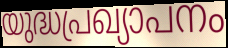
യുദ്ധപ്രഖ്യാപനം